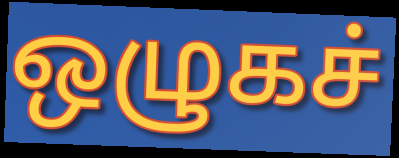
ஒழுகச்